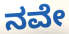
ನವೇ